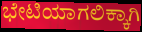
ಭೇಟಿಯಾಗಲಿಕ್ಕಾಗಿ